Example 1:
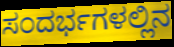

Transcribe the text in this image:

ಸಂದರ್ಭಗಳಲ್ಲಿನ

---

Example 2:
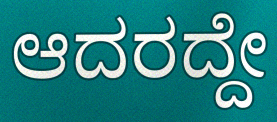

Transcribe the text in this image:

ಆದರದ್ದೇ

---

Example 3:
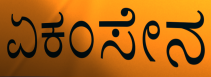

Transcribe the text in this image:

ಏಕಂಸೇನ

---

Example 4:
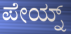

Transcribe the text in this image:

ಪೇಯ್ನ್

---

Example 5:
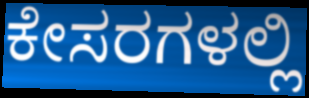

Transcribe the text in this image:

ಕೇಸರಗಳಲ್ಲಿ